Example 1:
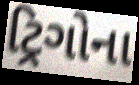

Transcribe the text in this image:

ટ્રિગોના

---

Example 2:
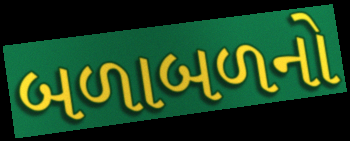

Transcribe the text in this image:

બળાબળનો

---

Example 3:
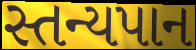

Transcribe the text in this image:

સ્તન્યપાન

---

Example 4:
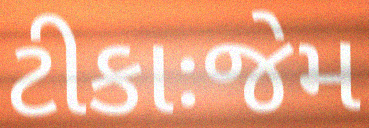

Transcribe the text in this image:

ટીકાઃજેમ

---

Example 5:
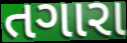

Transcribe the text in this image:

તગારા